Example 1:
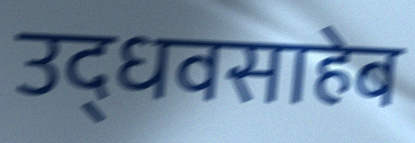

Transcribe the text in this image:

उद्धवसाहेब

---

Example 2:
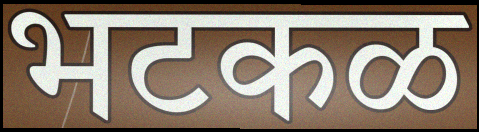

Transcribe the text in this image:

भटकळ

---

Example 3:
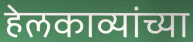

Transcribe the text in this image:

हेलकाव्यांच्या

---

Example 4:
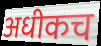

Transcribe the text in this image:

अधीकच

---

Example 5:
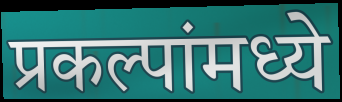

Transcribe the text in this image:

प्रकल्पांमध्ये